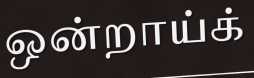
ஒன்றாய்க்